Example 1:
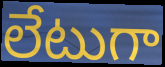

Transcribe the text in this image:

లేటుగా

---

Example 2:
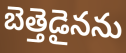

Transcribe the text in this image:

బెత్తెడైనను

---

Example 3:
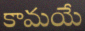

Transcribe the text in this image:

కామయే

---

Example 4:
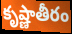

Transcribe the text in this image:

కృష్ణాతీరం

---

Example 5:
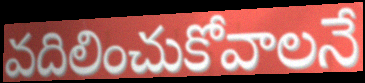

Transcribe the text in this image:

వదిలించుకోవాలనే